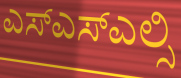
ಎಸ್ಎಸ್ಎಲ್ಸಿ